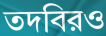
তদবিরও